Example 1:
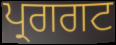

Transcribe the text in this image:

ਪ੍ਰਗਗਟ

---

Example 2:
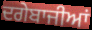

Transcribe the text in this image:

ਦਗੇਬਾਜੀਆਂ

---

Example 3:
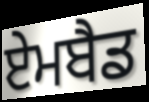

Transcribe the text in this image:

ਏਮਬੈਡ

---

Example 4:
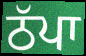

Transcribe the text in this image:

ਠੱਪਾ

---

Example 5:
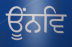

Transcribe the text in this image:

ਊਂਨਵਿ